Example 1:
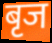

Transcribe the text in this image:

बृज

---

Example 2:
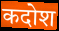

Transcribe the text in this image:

कदोश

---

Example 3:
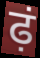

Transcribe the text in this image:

ढ़ं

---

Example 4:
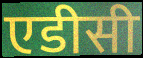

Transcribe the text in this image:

एडीसी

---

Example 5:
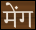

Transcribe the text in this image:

मेंग